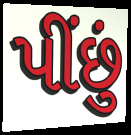
પીંછું